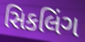
સિકલિંગ